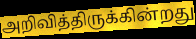
அறிவித்திருக்கின்றது